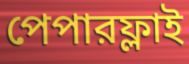
পেপারফ্লাই